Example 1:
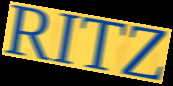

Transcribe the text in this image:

RITZ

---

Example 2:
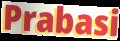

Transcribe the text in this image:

Prabasi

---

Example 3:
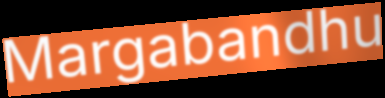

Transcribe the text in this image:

Margabandhu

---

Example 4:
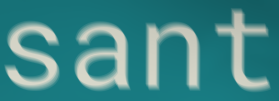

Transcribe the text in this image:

sant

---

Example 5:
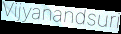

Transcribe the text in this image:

Vijyanandsuri